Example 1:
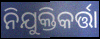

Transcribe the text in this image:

ନିଯୁକ୍ତିକର୍ତ୍ତା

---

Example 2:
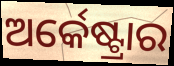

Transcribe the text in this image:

ଅର୍କେଷ୍ଟ୍ରାର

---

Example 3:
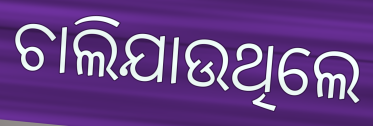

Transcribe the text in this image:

ଚାଲିଯାଉଥିଲେ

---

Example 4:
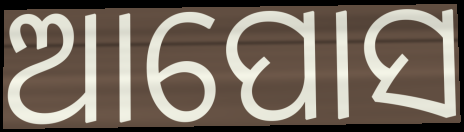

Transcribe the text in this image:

ଆପୋସ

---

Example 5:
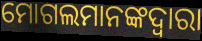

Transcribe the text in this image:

ମୋଗଲମାନଙ୍କଦ୍ୱାରା